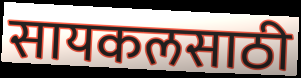
सायकलसाठी